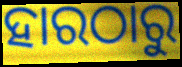
ହାରଠାରୁ